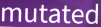
mutated